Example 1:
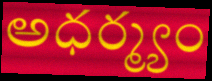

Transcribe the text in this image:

అధర్మ్యం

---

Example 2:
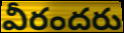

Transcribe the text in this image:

వీరందరు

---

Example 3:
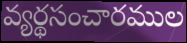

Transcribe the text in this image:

వ్యర్థసంచారముల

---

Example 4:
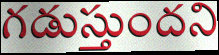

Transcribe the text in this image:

గడుస్తుందని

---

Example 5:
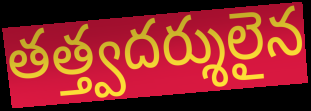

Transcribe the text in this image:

తత్త్వదర్శులైన